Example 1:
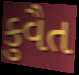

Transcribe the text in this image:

કુવૈત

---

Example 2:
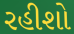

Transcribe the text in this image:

રહીશો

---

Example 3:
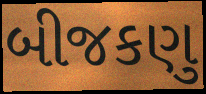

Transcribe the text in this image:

બીજકણુ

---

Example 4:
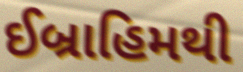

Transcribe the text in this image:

ઈબ્રાહિમથી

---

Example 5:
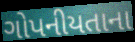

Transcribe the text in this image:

ગોપનીયતાના